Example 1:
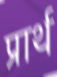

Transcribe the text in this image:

प्रार्थ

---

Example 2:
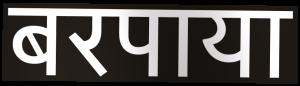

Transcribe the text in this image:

बरपाया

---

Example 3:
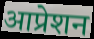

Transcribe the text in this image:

आप्रेशन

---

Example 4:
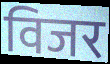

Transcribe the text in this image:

विजर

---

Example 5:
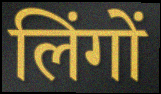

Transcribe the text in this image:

लिंगों